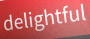
delightful